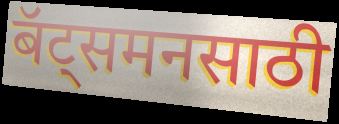
बॅट्समनसाठी